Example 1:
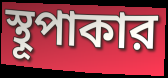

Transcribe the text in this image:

স্থূপাকার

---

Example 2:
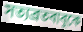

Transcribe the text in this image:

সত্যব্রতবাবুকে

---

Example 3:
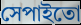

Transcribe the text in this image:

সেপাইতো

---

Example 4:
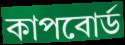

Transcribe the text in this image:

কাপবোর্ড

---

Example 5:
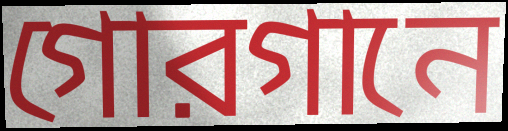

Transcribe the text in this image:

গোরগানে